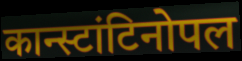
कान्स्टांटिनोपल